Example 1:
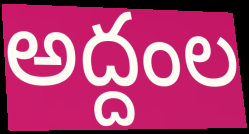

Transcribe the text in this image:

అద్దంల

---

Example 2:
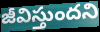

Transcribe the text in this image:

జీవిస్తుందని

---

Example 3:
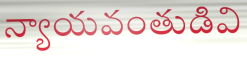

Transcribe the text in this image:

న్యాయవంతుడివి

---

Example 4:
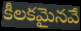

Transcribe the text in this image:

కీలకమైనవే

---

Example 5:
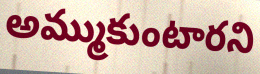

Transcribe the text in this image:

అమ్ముకుంటారని